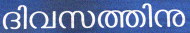
ദിവസത്തിനു